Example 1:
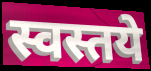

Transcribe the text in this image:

स्वस्तये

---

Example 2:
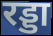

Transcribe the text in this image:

रड्डा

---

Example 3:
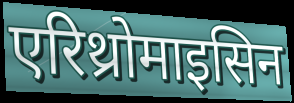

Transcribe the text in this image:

एरिथ्रोमाइसिन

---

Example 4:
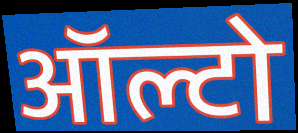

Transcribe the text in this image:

ऑल्टो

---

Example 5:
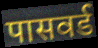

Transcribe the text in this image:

पासवर्ड